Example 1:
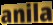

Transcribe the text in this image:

anila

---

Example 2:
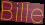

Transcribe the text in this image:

Bille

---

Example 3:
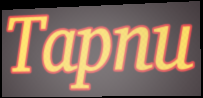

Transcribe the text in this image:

Tapnu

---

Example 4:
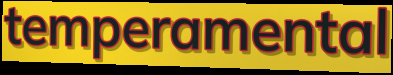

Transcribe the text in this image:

temperamental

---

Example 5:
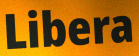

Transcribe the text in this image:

Libera